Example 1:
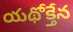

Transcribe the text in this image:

యథోక్తేన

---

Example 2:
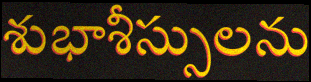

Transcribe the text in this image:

శుభాశీస్సులను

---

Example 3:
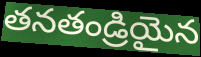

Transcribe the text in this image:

తనతండ్రియైన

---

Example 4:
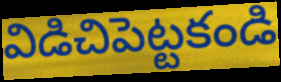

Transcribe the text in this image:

విడిచిపెట్టకండి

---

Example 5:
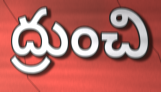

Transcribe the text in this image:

ద్రుంచి